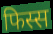
फिस्स